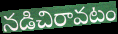
నడిచిరావటం